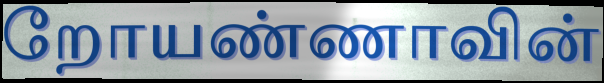
றோயண்ணாவின்